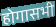
होगासभी